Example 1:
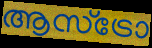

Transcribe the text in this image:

ആസ്ട്രോ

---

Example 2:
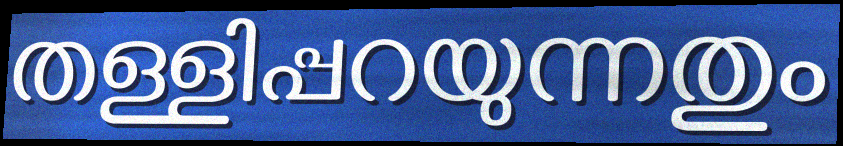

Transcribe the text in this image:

തള്ളിപ്പറയുന്നതും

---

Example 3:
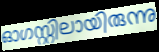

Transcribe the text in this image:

ഓഗസ്റ്റിലായിരുന്നു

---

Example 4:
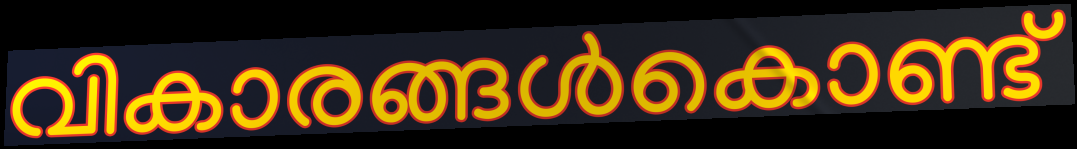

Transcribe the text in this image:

വികാരങ്ങൾകൊണ്ട്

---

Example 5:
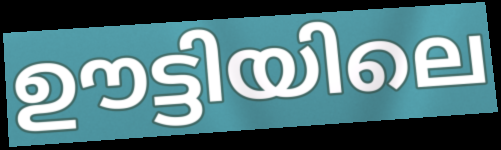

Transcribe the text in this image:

ഊട്ടിയിലെ